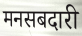
मनसबदारी